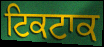
ਟਿਕਟਾਕ